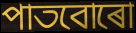
পাতবোৰো